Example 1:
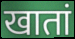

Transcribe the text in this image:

खातां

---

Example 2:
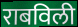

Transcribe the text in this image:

राबविली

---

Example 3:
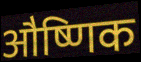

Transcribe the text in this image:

औष्णिक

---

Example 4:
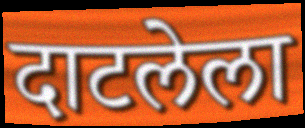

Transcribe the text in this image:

दाटलेला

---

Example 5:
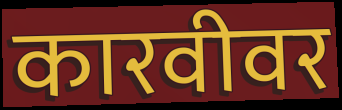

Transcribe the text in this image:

कारवीवर